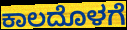
ಕಾಲದೊಳಗೆ